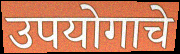
उपयोगाचे